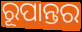
ରୂପାନ୍ତର